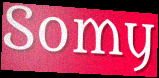
Somy